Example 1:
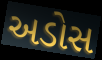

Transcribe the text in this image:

અડોસ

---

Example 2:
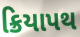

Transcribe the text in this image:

ક્રિયાપથ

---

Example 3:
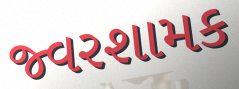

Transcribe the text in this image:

જ્વરશામક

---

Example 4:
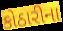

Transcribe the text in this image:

કોઠારીના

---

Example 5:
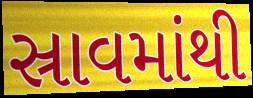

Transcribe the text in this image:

સ્રાવમાંથી